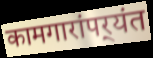
कामगारांपर्यंत